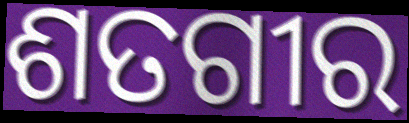
ଶତଗୀର